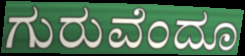
ಗುರುವೆಂದೂ